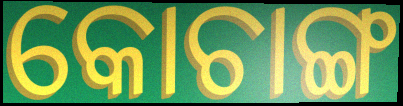
କୋଚାଙ୍ଗ